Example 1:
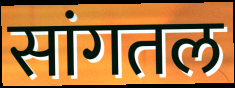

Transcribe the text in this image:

सांगतल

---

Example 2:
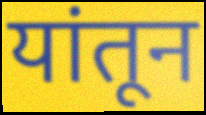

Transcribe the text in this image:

यांतून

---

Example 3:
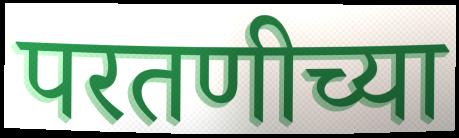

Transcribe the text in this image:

परतणीच्या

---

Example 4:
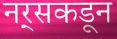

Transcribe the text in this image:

नर्सकडून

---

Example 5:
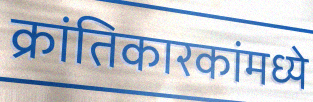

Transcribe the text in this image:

क्रांतिकारकांमध्ये